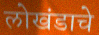
लोखंडाचे